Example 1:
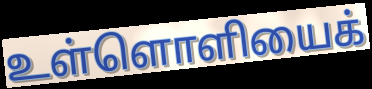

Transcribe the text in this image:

உள்ளொளியைக்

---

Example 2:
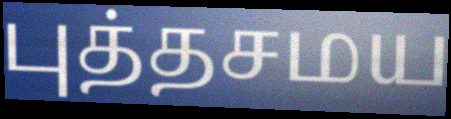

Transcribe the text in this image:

புத்தசமய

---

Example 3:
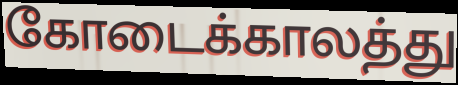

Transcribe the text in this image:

கோடைக்காலத்து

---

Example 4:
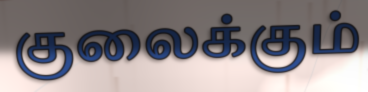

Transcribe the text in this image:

குலைக்கும்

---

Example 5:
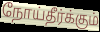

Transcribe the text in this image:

நோய்தீர்க்கும்